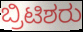
ಬ್ರಿಟಿಶರು